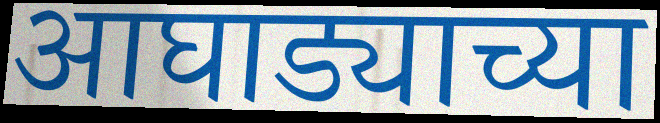
आघाड्याच्या